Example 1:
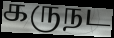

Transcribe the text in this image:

கருநட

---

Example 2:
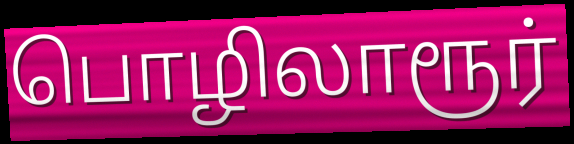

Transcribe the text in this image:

பொழிலாரூர்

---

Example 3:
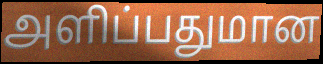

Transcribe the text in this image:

அளிப்பதுமான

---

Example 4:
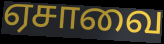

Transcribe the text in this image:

ஏசாவை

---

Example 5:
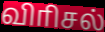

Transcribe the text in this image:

விரிசல்